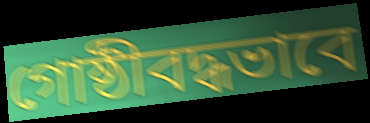
গোষ্ঠীবদ্ধভাবে